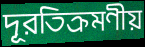
দূরতিক্রমণীয়